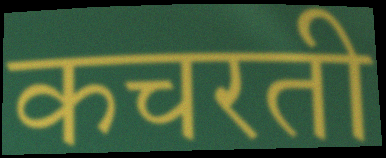
कचरती